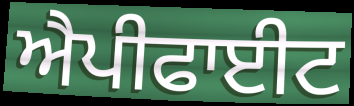
ਐਪੀਫਾਈਟ